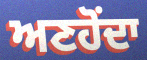
ਅਣਹੋਂਦਾ